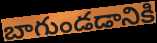
బాగుండడానికి